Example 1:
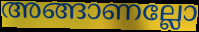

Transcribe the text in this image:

അങ്ങാണല്ലോ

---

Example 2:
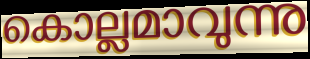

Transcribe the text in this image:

കൊല്ലമാവുന്നു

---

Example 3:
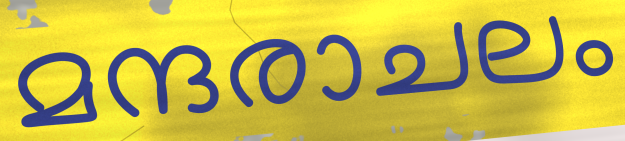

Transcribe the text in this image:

മന്ദരാചലം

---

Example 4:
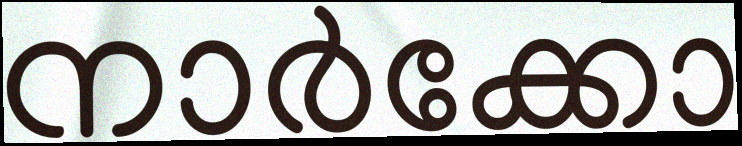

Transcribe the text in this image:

നാർക്കോ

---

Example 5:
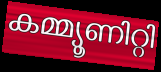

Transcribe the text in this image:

കമ്മ്യൂണിറ്റി